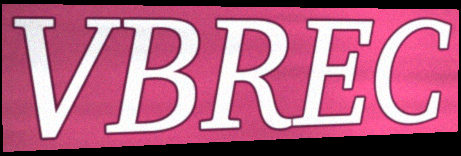
VBREC